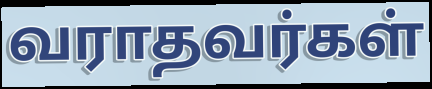
வராதவர்கள்